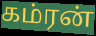
கம்ரன்